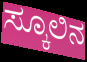
ಸ್ಕೂಲಿನ